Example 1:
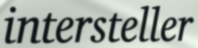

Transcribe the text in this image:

intersteller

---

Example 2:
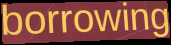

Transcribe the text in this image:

borrowing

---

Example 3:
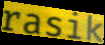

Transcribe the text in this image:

rasik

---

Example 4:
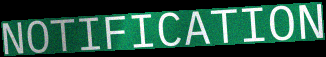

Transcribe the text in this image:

NOTIFICATION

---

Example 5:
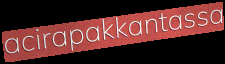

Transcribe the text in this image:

acirapakkantassa